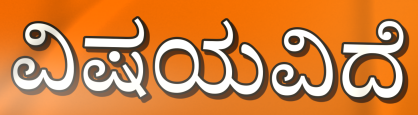
ವಿಷಯವಿದೆ